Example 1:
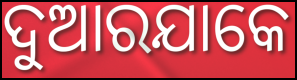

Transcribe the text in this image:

ଦୁଆରଯାକେ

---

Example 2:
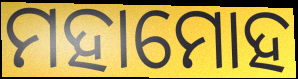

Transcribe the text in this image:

ମହାମୋହ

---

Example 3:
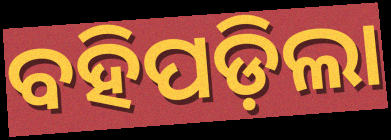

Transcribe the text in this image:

ବହିପଡ଼ିଲା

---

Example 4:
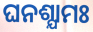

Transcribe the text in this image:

ଘନଶ୍ଯାମଃ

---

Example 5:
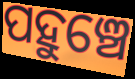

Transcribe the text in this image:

ପହୁଞ୍ଚେ